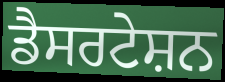
ਡੈਸਰਟੇਸ਼ਨ